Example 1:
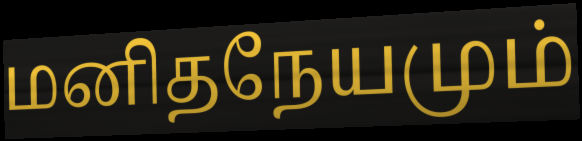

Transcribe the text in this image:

மனிதநேயமும்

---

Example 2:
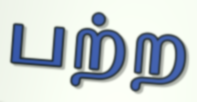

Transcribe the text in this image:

பற்ற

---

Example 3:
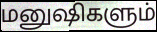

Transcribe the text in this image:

மனுஷிகளும்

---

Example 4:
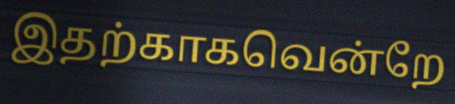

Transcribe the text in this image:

இதற்காகவென்றே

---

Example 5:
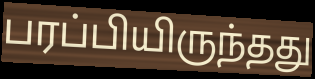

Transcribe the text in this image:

பரப்பியிருந்தது